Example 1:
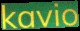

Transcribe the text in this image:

kavio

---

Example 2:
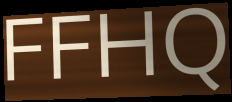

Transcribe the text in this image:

FFHQ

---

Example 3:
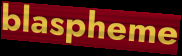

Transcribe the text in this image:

blaspheme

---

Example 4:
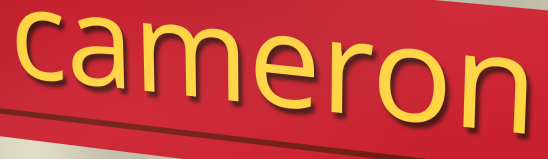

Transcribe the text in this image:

cameron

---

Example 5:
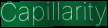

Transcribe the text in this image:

Capillarity